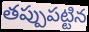
తప్పుపట్టిన